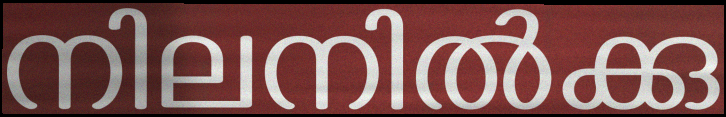
നിലനിൽക്കു